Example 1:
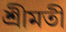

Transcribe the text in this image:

শ্ৰীমতী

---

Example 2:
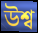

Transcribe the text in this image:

উশ্ব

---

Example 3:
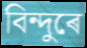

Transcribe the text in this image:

বিন্দুৰে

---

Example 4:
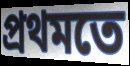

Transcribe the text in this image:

প্ৰথমতে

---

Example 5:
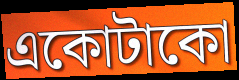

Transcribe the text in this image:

একোটাকো